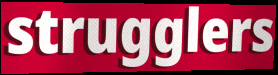
strugglers